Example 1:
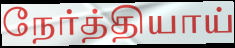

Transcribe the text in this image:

நேர்த்தியாய்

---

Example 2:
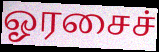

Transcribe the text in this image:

ஓரசைச்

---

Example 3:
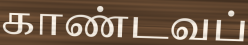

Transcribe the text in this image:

காண்டவப்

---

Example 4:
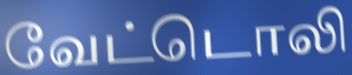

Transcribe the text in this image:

வேட்டொலி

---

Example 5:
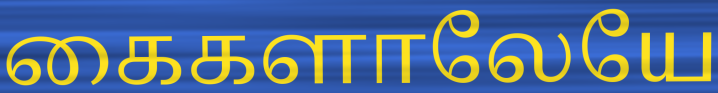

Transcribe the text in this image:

கைகளாலேயே